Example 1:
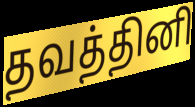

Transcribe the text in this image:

தவத்தினி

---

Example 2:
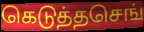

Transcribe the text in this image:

கெடுத்தசெங்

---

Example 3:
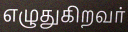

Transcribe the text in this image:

எழுதுகிறவர்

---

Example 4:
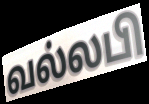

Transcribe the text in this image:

வல்லபி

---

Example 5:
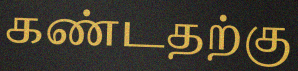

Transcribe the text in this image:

கண்டதற்கு